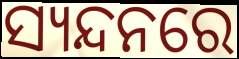
ସ୍ୟନ୍ଦନରେ